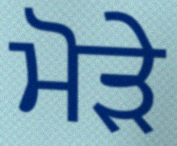
ਮੋੜੇ